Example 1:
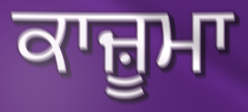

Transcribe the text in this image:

ਕਾਜ਼ੂਮਾ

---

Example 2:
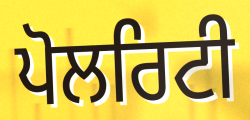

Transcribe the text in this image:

ਪੋਲਰਿਟੀ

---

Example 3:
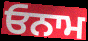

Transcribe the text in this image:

ਓਨਾਮ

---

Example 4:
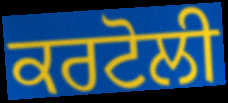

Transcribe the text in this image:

ਕਰਟੋਲੀ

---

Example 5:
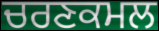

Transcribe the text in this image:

ਚਰਣਕਮਲ